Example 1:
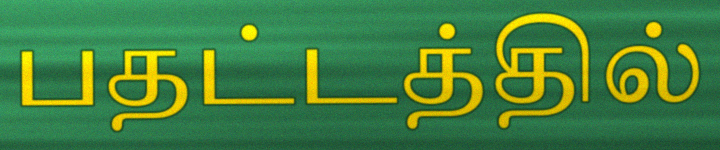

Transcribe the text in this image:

பதட்டத்தில்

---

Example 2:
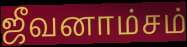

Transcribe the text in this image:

ஜீவனாம்சம்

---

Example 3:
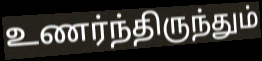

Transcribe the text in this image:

உணர்ந்திருந்தும்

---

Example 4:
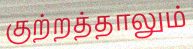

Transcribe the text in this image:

குற்றத்தாலும்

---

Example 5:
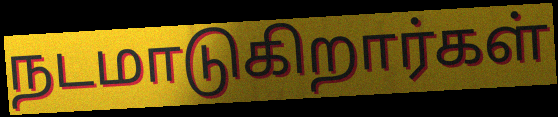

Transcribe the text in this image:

நடமாடுகிறார்கள்